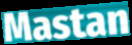
Mastan